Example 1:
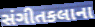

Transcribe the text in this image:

સંગીતકલાના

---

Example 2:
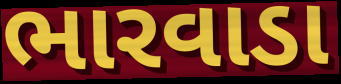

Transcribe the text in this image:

ભારવાડા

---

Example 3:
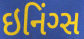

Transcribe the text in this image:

ઇનિંગ્સ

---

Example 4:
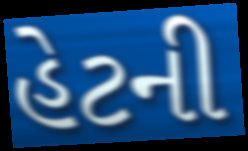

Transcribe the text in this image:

હેટની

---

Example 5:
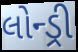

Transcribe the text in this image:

લોન્ડ્રી